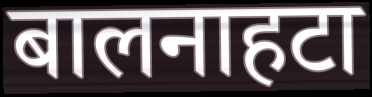
बालनाहटा